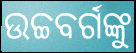
ଉଚ୍ଚବର୍ଗଙ୍କୁ